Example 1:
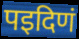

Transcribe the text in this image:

पइदिणं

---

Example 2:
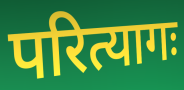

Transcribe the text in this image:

परित्यागः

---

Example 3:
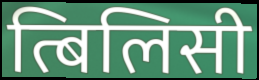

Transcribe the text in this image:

त्बिलिसी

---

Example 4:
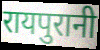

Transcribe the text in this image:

रायपुरानी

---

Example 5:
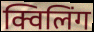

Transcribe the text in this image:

क्विलिंग